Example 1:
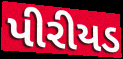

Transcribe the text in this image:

પીરીયડ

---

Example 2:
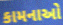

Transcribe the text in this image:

કામનાઓ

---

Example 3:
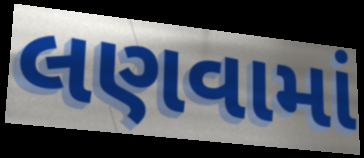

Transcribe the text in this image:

લણવામાં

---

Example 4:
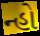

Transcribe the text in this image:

ન્હો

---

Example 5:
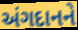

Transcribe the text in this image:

અંગદાનને